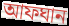
আফঘান